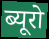
ब्यूरो